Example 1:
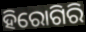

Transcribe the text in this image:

ହିରୋଗିରି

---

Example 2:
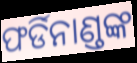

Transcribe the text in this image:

ଫର୍ଡିନାଣ୍ଡଙ୍କ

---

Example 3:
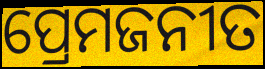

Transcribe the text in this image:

ପ୍ରେମଜନୀତ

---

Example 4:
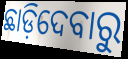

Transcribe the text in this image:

ଛାଡ଼ିଦେବାରୁ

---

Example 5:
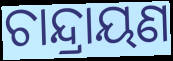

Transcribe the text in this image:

ଚାନ୍ଦ୍ରାୟଣ